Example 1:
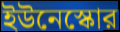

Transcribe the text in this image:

ইউনেস্কোর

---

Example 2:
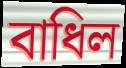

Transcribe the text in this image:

বাধিল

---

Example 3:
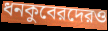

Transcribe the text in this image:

ধনকুবেরদেরও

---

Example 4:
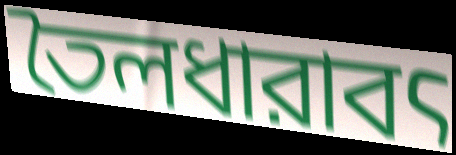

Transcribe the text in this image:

তৈলধারাবৎ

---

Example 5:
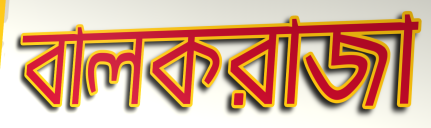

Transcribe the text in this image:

বালকরাজা